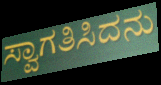
ಸ್ವಾಗತಿಸಿದನು